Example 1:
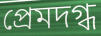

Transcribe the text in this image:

প্রেমদগ্ধ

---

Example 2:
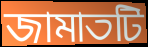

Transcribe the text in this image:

জামাতটি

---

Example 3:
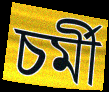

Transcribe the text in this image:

চর্মী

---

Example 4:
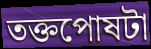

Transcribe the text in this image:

তক্তপোষটা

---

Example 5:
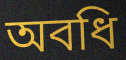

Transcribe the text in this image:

অবধি